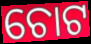
ଚୋଟ